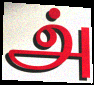
அ்